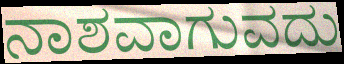
ನಾಶವಾಗುವದು